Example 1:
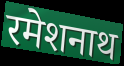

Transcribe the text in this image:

रमेशनाथ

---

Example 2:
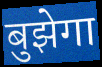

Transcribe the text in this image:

बुझेगा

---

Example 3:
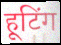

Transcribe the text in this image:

हूटिंग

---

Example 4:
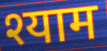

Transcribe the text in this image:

श्याम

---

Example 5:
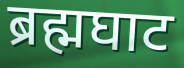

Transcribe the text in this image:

ब्रह्मघाट